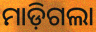
ମାଡ଼ିଗଲା